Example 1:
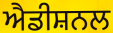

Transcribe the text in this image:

ਐਡੀਸ਼ਨਲ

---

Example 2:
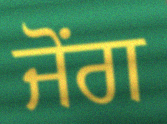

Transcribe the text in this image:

ਜੋਂਗ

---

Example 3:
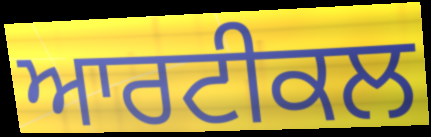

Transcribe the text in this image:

ਆਰਟੀਕਲ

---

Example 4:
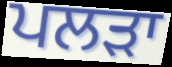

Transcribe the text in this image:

ਪਲੜਾ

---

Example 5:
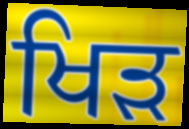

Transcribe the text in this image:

ਖਿੜ